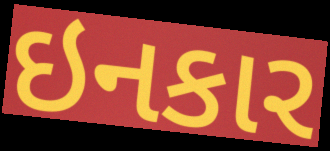
ઇનકાર